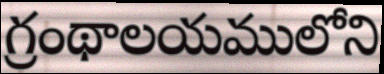
గ్రంథాలయములోని